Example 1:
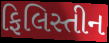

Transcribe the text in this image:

ફિલિસ્તીન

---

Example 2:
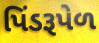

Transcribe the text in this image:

પિંડરૂપેળ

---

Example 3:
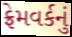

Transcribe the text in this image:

ફ્રેમવર્કનું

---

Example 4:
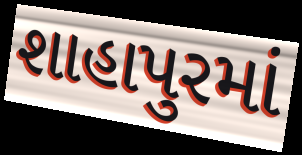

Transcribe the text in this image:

શાહાપુરમાં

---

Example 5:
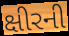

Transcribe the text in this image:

ક્ષીરની